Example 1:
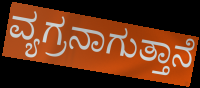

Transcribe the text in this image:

ವ್ಯಗ್ರನಾಗುತ್ತಾನೆ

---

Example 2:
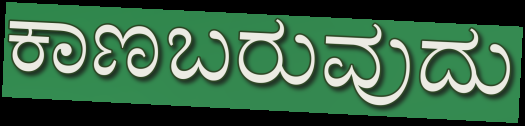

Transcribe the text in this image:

ಕಾಣಬರುವುದು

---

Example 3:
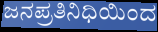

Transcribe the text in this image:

ಜನಪ್ರತಿನಿಧಿಯಿಂದ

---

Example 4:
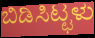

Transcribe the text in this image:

ಬಿಡಿಸಿಟ್ಟಳು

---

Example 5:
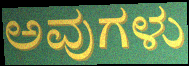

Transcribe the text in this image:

ಅವುಗಳು